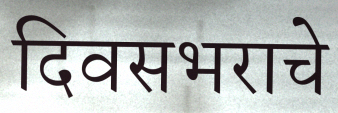
दिवसभराचे